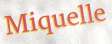
Miquelle